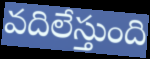
వదిలేస్తుంది